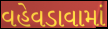
વહેવડાવામાં